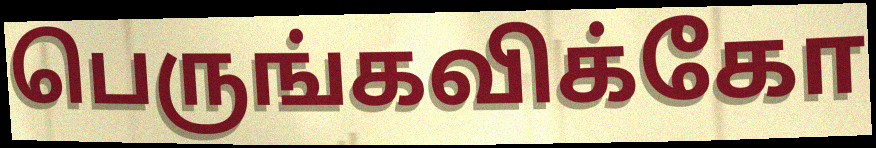
பெருங்கவிக்கோ